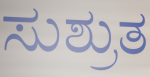
ಸುಶ್ರುತ